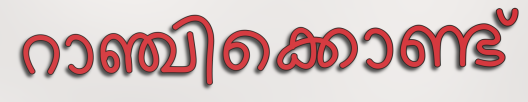
റാഞ്ചിക്കൊണ്ട്